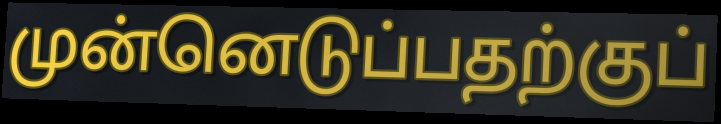
முன்னெடுப்பதற்குப்